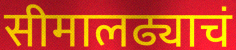
सीमालढ्याचं